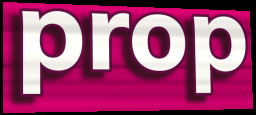
prop